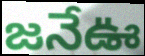
జనేఊ